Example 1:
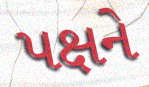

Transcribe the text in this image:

પક્ષને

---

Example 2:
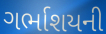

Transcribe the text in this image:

ગર્ભાશયની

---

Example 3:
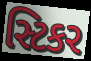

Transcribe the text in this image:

સ્ટિકર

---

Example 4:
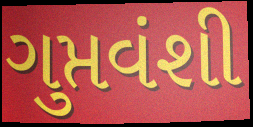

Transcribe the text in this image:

ગુપ્તવંશી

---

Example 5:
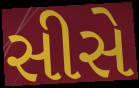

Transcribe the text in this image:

સીસે